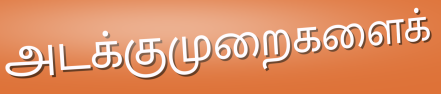
அடக்குமுறைகளைக்